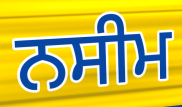
ਨਸੀਮ